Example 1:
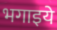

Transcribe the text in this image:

भगाइये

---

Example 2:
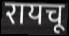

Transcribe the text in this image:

रायचू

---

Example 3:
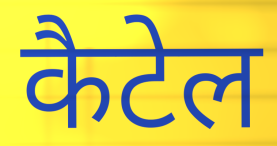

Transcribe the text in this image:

कैटेल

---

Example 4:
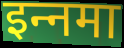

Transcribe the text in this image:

इन्नमा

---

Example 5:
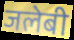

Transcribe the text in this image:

जलेबी